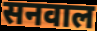
सनवाल